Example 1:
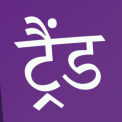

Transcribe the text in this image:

ट्रैंड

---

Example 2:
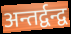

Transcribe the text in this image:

अन्तर्द्वन्द्व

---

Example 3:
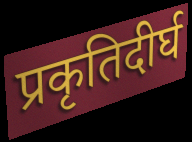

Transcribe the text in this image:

प्रकृतिदीर्घ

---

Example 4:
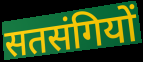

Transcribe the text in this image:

सतसंगियों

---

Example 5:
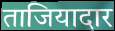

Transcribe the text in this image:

ताजियादार